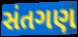
સંતગણ